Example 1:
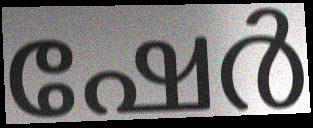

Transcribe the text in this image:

ഷേർ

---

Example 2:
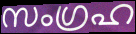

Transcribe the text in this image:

സംഗ്രഹ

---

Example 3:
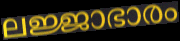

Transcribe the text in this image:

ലജ്ജാഭാരം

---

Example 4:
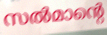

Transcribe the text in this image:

സൽമാന്റെ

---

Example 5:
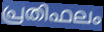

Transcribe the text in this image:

പ്രതിഫലം